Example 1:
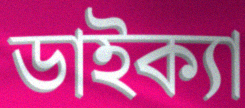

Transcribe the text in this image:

ডাইক্যা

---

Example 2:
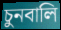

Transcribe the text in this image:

চুনবালি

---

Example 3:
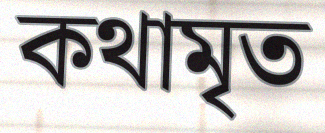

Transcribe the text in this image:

কথামৃত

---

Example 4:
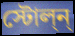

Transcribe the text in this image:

স্টোল্ন্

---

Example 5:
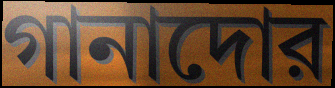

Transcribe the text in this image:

গানাদোর